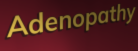
Adenopathy